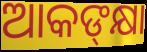
ଆକଙ୍‍କ୍ଷା